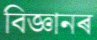
বিজ্ঞানৰ